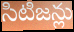
సిటిజన్లు